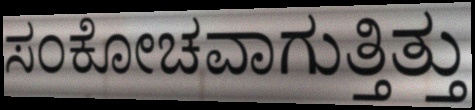
ಸಂಕೋಚವಾಗುತ್ತಿತ್ತು